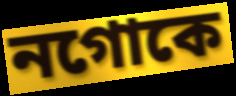
নগোকে